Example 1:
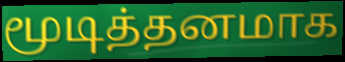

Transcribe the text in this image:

மூடித்தனமாக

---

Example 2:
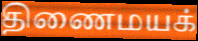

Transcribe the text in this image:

திணைமயக்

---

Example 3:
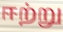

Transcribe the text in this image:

ஈற்று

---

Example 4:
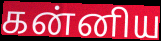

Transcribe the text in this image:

கன்னிய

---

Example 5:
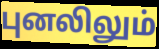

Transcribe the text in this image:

புனலிலும்